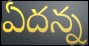
ఏదన్న